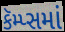
કૅમ્પ્સમાં